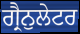
ਗ੍ਰੈਨੁਲੇਟਰ